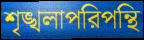
শৃঙ্খলাপরিপন্থি